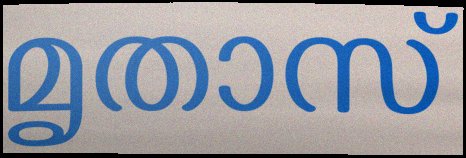
മൃതാസ്